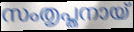
സംതൃപ്തനായ്